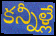
కన్నీళ్లే